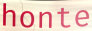
honte